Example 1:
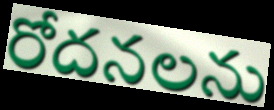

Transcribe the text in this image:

రోదనలను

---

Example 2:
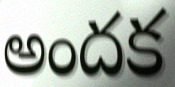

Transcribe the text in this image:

అందక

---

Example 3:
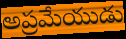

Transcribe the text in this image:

అప్రమేయుడు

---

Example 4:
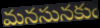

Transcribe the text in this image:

మనసునకుఁ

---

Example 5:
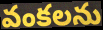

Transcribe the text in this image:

వంకలను